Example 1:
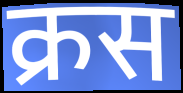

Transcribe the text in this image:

क्रस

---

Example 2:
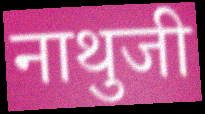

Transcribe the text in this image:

नाथुजी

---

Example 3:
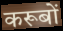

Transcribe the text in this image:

करूबों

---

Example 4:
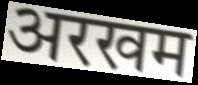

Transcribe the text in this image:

अरखम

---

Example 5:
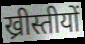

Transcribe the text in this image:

ख्रीस्तीयों